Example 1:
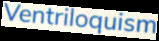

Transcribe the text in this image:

Ventriloquism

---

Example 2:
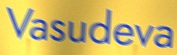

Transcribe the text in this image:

Vasudeva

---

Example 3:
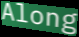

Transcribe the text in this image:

Along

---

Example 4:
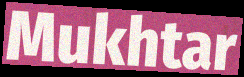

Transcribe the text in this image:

Mukhtar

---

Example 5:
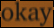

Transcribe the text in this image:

okay